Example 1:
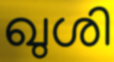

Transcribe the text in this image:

ഖുശി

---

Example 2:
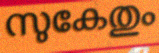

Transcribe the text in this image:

സുകേതും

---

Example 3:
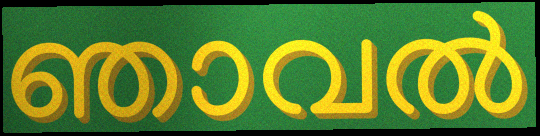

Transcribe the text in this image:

ഞാവൽ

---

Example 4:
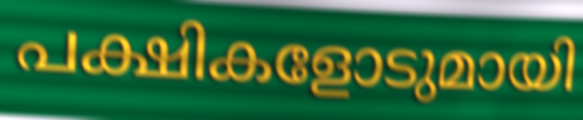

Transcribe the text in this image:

പക്ഷികളോടുമായി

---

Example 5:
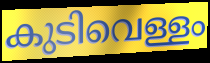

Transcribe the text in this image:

കുടിവെള്ളം